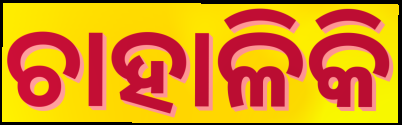
ଚାହାଳିକି